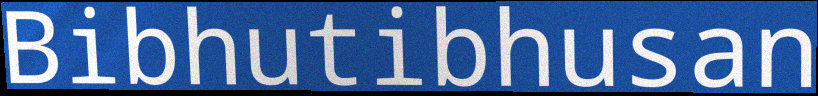
Bibhutibhusan